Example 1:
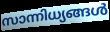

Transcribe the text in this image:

സാന്നിധ്യങ്ങൾ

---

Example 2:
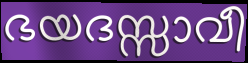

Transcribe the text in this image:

ഭയദസ്സാവീ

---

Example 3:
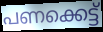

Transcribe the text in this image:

പണക്കെട്ട്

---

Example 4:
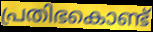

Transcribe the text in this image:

പ്രതിഭകൊണ്ട്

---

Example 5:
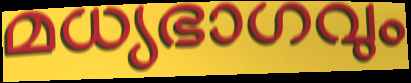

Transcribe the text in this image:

മധ്യഭാഗവും